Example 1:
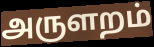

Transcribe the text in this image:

அருளறம்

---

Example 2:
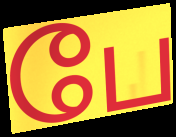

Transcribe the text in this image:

பே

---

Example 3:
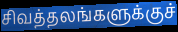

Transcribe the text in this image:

சிவத்தலங்களுக்குச்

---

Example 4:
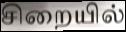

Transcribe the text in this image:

சிறையில்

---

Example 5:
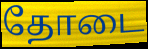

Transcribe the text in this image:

தோடை